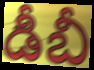
డీబీ